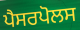
ਪੈਸਰਪੋਲਸ